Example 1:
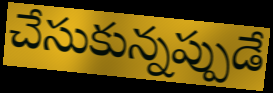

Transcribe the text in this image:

చేసుకున్నప్పుడే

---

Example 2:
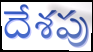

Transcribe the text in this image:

దేశపు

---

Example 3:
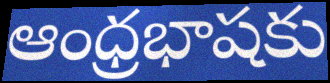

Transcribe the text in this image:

ఆంధ్రభాషకు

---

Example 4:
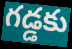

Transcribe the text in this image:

గడ్డకు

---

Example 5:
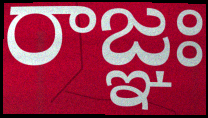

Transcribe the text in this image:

రాజ్ఞః